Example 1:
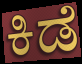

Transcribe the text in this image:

ಕಿಡೆ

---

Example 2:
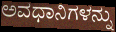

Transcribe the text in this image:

ಅವಧಾನಿಗಳನ್ನು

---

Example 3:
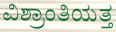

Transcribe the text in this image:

ವಿಶ್ರಾಂತಿಯತ್ತ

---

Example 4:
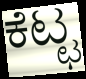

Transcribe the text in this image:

ಕೆಟ್ಟ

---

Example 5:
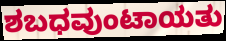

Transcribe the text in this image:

ಶಬಧವುಂಟಾಯತು